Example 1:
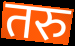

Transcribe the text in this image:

तरु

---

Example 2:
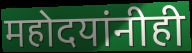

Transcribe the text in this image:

महोदयांनीही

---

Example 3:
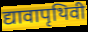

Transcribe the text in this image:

द्यावापृथिवी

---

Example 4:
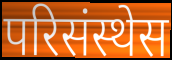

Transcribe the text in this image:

परिसंस्थेस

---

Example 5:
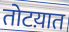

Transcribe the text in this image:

तोटय़ात